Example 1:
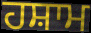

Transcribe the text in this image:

ਹਸ਼ਾਮ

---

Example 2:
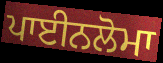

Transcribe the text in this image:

ਪਾਈਨਲੋਮਾ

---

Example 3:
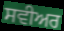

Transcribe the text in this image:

ਸਵੀਅਰ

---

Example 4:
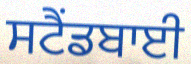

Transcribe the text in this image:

ਸਟੈਂਡਬਾਈ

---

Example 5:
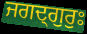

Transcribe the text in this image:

ਜਗਦ੍ਗੁਰੁਃ